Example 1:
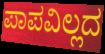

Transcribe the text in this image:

ಪಾಪವಿಲ್ಲದ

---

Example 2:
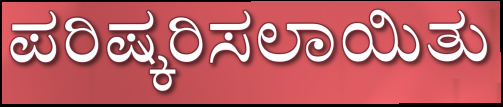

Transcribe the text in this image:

ಪರಿಷ್ಕರಿಸಲಾಯಿತು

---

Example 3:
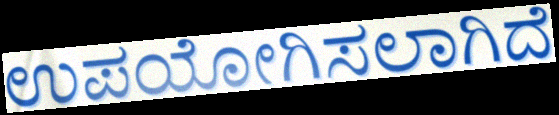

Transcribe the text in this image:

ಉಪಯೋಗಿಸಲಾಗಿದೆ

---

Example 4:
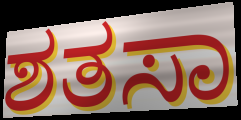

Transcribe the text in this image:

ಶತಸಾ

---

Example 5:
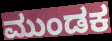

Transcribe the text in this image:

ಮುಂಡಕ